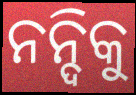
ନନ୍ଦିକୁ